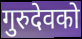
गुरुदेवको